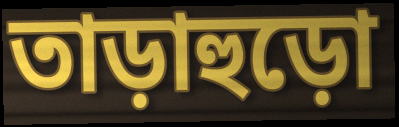
তাড়াহুড়ো